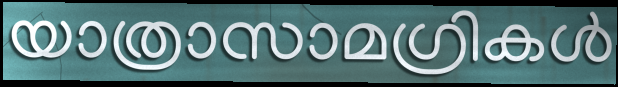
യാത്രാസാമഗ്രികൾ